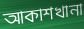
আকাশখানা